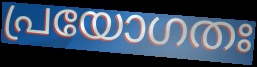
പ്രയോഗതഃ